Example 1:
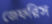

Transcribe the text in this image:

জেফরিস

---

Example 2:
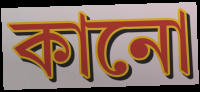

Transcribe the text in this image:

কানো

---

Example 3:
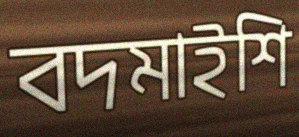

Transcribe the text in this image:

বদমাইশি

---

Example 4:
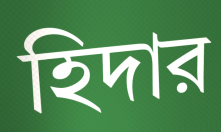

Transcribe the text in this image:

হিদার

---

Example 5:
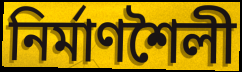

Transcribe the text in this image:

নির্মাণশৈলী